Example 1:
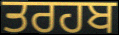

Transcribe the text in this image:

ਤਰਹਬ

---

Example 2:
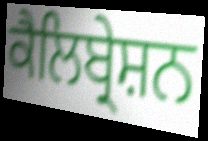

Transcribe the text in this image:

ਕੈਲਿਬ੍ਰੇਸ਼ਨ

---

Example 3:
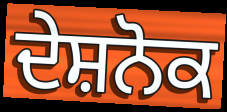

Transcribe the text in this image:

ਦੇਸ਼ਨੋਕ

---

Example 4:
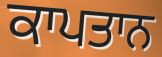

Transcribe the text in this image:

ਕਾਪਤਾਨ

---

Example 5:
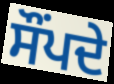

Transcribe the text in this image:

ਸੌਂਪਦੇ